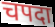
चपदा